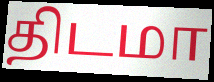
திடமா